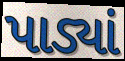
પાડ્યાં